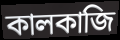
কালকাজি